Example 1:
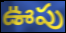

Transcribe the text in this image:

ఊపు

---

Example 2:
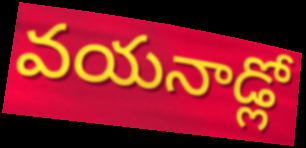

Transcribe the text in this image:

వయనాడ్లో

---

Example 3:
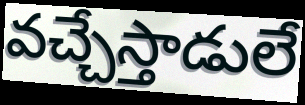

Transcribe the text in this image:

వచ్చేస్తాడులే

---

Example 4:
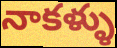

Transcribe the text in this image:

నాకళ్ళు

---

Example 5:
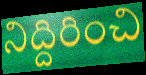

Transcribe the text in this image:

నిద్దిరించి